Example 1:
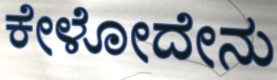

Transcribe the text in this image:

ಕೇಳೋದೇನು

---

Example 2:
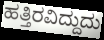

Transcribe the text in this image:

ಹತ್ತಿರವಿದ್ದುದು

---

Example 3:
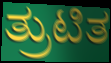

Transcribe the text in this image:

ತ್ರುಟಿತ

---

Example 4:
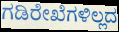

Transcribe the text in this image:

ಗಡಿರೇಖೆಗಳಿಲ್ಲದ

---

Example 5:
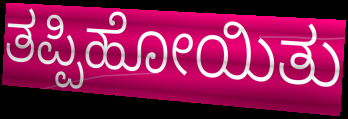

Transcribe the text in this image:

ತಪ್ಪಿಹೋಯಿತು